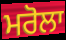
ਮਰੋਲਾ